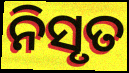
ନିସୃତ